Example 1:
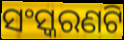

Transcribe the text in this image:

ସଂସ୍କରଣଟି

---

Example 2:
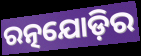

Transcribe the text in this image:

ରତ୍ନଯୋଡ଼ିର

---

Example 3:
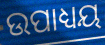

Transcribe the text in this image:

ଉପାଧ୍ୟୟ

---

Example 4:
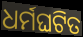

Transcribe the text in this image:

ଧର୍ମଘଟିତ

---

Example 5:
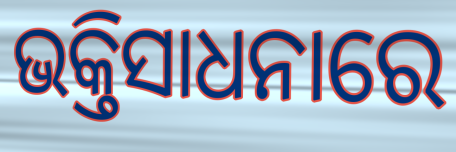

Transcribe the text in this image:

ଭକ୍ତିସାଧନାରେ